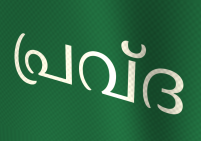
പ്രവ്ദ